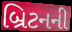
બ્રિટનની